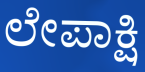
ಲೇಪಾಕ್ಷಿ